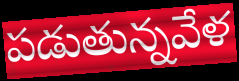
పడుతున్నవేళ